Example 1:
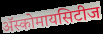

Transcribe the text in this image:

ॲस्कोमायसिटीज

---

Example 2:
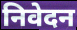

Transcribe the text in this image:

निवेदन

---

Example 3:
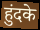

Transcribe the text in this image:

हुंदके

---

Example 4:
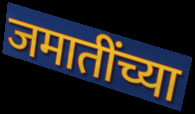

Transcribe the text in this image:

जमातींच्या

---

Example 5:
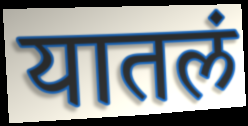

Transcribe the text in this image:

यातलं